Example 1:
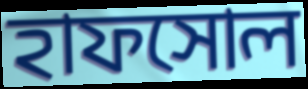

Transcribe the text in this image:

হাফসোল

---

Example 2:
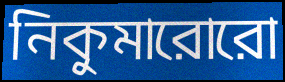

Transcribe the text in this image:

নিকুমারোরো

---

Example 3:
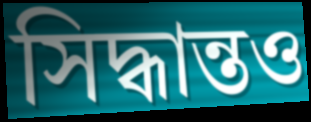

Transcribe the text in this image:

সিদ্ধান্তও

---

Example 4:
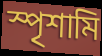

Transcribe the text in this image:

স্পৃশামি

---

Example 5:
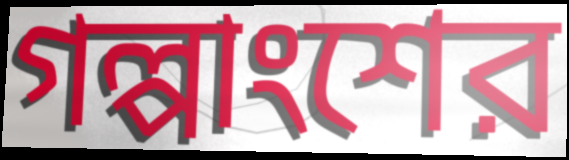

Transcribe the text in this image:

গল্পাংশের